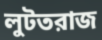
লুটতরাজ